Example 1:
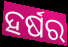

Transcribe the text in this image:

ହର୍ଷର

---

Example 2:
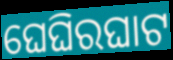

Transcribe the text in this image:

ଘେଘିରଘାଟ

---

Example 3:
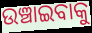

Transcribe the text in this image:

ଉଞ୍ଚାଇବାକୁ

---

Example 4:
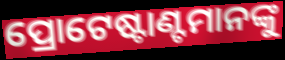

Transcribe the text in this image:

ପ୍ରୋଟେଷ୍ଟାଣ୍ଟମାନଙ୍କୁ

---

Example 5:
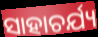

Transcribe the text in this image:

ସାହାଚର୍ଯ୍ୟ